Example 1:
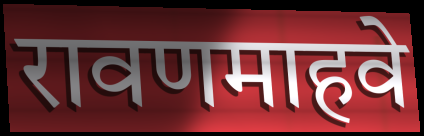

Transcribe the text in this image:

रावणमाहवे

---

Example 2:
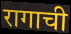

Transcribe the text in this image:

रागाची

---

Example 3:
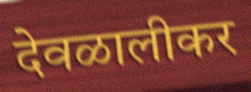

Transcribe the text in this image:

देवळालीकर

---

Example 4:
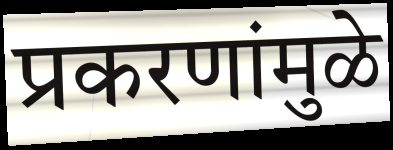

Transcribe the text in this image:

प्रकरणांमुळे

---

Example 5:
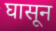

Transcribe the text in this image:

घासून